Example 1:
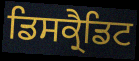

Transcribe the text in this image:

ਡਿਸਕ੍ਰੈਡਿਟ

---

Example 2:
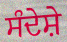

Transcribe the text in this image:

ਸੰਦੇਸ਼ੇ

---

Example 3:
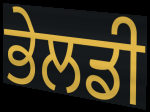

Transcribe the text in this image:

ਭੇਲਡੀ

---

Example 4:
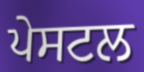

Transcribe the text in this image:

ਪੇਸਟਲ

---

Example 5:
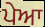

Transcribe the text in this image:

ਪੇਆ